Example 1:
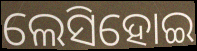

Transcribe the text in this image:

ଲେସିହୋଇ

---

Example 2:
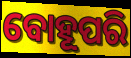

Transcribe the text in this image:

ବୋହୂପରି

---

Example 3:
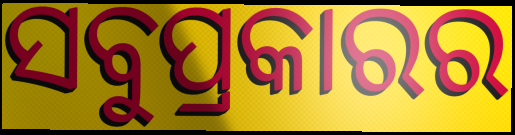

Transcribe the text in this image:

ସବୁପ୍ରକାରର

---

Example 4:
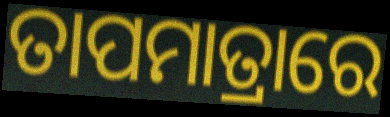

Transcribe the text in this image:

ତାପମାତ୍ରାରେ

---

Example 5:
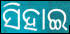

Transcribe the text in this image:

ସିହାଇ